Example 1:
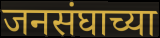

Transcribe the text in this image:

जनसंघाच्या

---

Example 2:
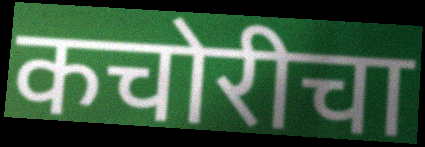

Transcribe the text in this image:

कचोरीचा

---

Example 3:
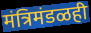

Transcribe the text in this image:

मंत्रिमंडळही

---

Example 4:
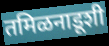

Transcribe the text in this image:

तमिळनाडूशी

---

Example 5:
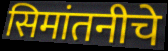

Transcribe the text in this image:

सिमांतनीचे